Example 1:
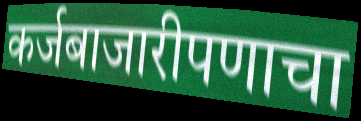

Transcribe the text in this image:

कर्जबाजारीपणाचा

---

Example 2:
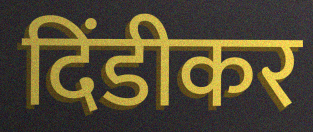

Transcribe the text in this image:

दिंडीकर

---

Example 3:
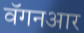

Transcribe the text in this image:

वॅगनआर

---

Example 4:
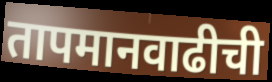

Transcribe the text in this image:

तापमानवाढीची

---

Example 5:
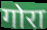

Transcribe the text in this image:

गोरा